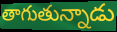
తాగుతున్నాడు